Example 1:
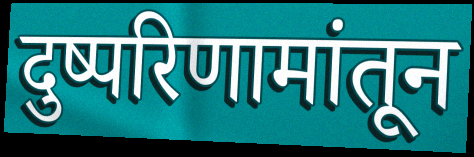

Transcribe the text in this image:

दुष्परिणामांतून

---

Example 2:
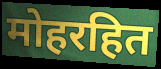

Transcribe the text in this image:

मोहरहित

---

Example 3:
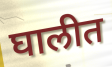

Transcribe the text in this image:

घालीत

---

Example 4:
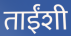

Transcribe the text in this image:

ताईंशी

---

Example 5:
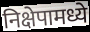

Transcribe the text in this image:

निक्षेपामध्ये